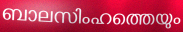
ബാലസിംഹത്തെയും